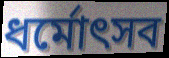
ধর্মোৎসব